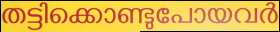
തട്ടിക്കൊണ്ടുപോയവർ